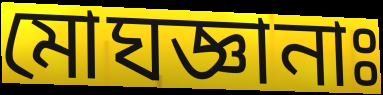
মোঘজ্ঞানাঃ